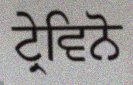
ਟ੍ਰੇਵਿਨੋ